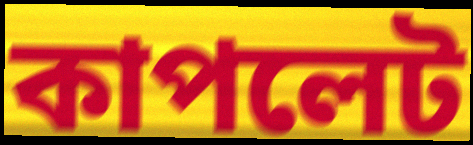
কাপলেট